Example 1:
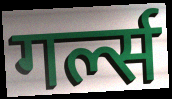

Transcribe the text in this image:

गर्ल्स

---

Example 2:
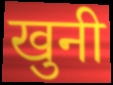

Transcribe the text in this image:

खुनी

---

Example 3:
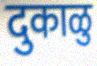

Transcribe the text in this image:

दुकाळु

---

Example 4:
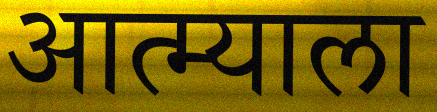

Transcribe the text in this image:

आत्म्याला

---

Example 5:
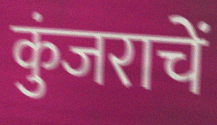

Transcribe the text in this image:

कुंजराचें